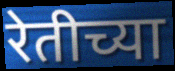
रेतीच्या